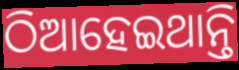
ଠିଆହେଇଥାନ୍ତି